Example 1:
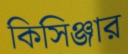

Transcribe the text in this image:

কিসিঞ্জার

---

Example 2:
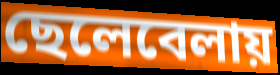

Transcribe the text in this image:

ছেলেবেলায়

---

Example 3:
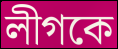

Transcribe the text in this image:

লীগকে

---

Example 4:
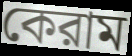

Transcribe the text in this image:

কেরাম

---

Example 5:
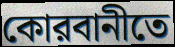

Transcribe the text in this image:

কোরবানীতে